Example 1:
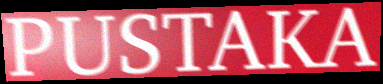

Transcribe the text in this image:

PUSTAKA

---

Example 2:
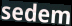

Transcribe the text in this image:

sedem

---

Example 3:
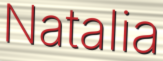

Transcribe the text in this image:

Natalia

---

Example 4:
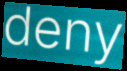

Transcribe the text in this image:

deny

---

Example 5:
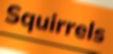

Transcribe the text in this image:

Squirrels